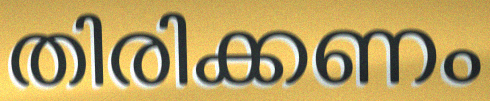
തിരിക്കണം